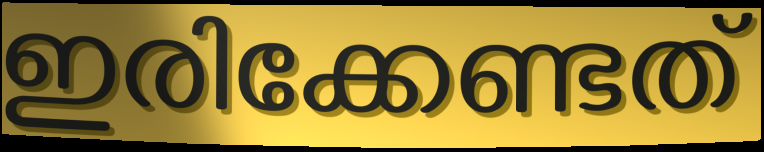
ഇരിക്കേണ്ടത്